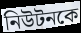
নিউটনকে